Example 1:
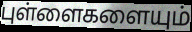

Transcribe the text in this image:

புள்ளைகளையும்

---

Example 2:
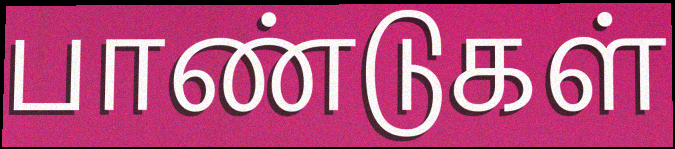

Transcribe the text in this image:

பாண்டுகள்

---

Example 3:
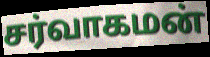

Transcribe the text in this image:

சர்வாகமன்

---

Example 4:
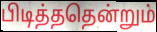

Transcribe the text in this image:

பிடித்ததென்றும்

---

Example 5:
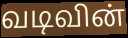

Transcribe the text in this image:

வடிவின்